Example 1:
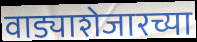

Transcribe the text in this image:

वाड्याशेजारच्या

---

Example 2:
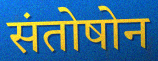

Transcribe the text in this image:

संतोषोन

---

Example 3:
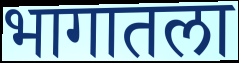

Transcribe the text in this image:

भागातला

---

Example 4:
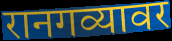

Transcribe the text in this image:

रानगव्यावर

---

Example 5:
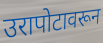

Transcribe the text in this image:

उरापोटावरून